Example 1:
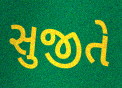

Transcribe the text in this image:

સુજીતે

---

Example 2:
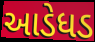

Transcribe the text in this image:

આડેધડ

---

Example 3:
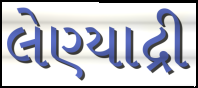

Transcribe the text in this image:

લેણ્યાદ્રી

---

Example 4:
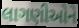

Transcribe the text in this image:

લાગણીઓને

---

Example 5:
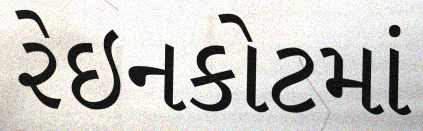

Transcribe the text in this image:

રેઇનકોટમાં